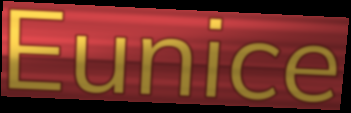
Eunice